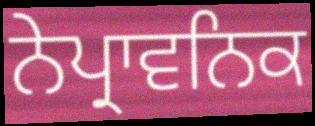
ਨੇਪ੍ਰਾਵਨਿਕ